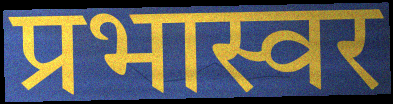
प्रभास्वर